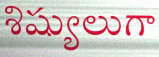
శిష్యులుగా